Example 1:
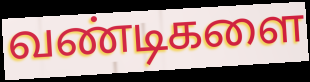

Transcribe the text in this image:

வண்டிகளை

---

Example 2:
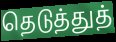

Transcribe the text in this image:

தெடுத்துத்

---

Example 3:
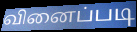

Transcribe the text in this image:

வினைப்படி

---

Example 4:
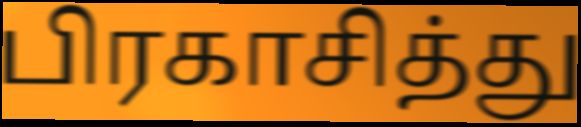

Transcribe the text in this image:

பிரகாசித்து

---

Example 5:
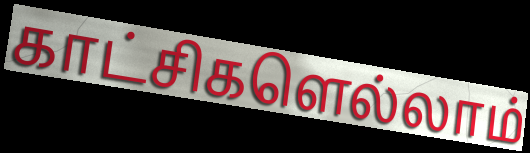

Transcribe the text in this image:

காட்சிகளெல்லாம்